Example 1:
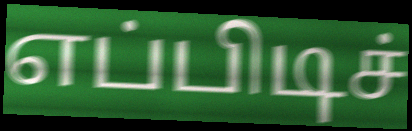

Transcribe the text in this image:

எப்பிடிச்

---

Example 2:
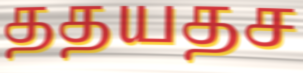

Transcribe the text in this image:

ததயதச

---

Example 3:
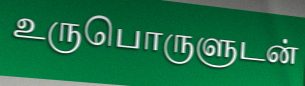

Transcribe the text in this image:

உருபொருளுடன்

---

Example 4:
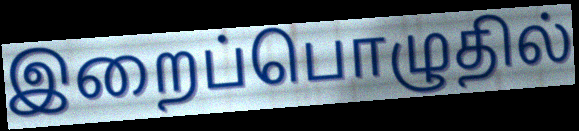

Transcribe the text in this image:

இறைப்பொழுதில்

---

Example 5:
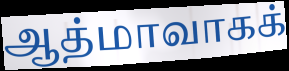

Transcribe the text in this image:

ஆத்மாவாகக்